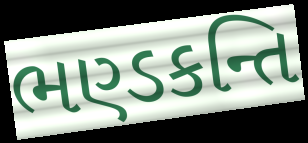
ભણ્ડકન્તિ